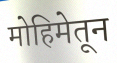
मोहिमेतून